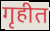
गृहीत